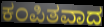
ಕಂಪಿತವಾದ